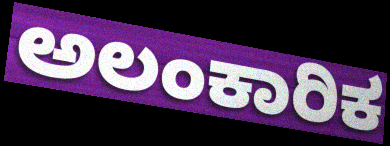
ಅಲಂಕಾರಿಕ